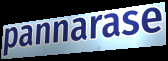
pannarase